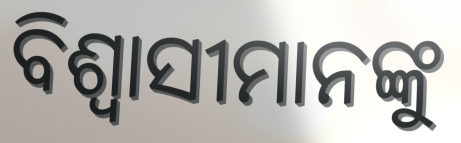
ବିଶ୍ୱାସୀମାନଙ୍କୁ